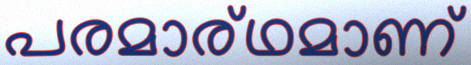
പരമാര്ഥമാണ്